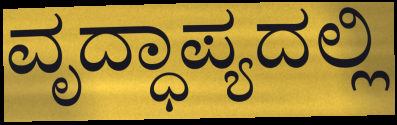
ವೃದ್ಧಾಪ್ಯದಲ್ಲಿ